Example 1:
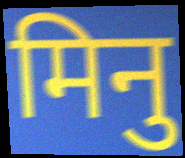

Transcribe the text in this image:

मिनु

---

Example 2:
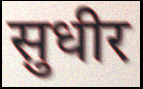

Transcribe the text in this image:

सुधीर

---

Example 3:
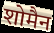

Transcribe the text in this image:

शोमैन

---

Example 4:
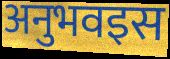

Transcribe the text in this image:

अनुभवइस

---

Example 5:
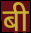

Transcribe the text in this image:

बी